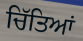
ਚਿੱਤਿਆਂ